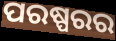
ପରଷ୍ପରର